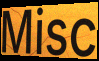
Misc